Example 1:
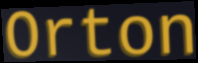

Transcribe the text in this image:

Orton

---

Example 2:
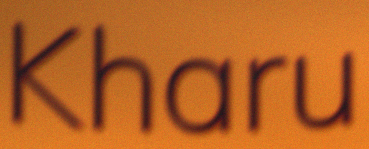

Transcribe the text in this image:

Kharu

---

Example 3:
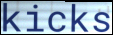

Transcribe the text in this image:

kicks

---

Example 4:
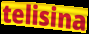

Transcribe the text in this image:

telisina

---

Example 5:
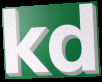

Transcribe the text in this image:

kd